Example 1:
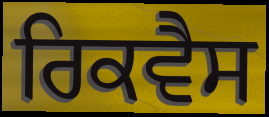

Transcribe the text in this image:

ਰਿਕਵੈਸ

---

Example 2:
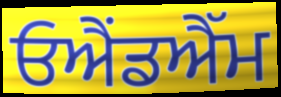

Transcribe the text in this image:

ਓਐਂਡਐੱਮ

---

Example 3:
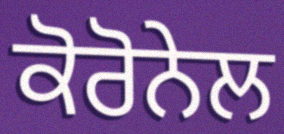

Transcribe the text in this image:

ਕੋਰੋਨੇਲ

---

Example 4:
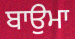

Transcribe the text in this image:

ਬਾਉਮਾ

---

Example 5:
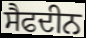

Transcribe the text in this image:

ਸੈਫਦੀਨ